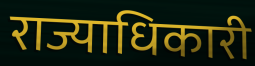
राज्याधिकारी